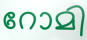
റോമി